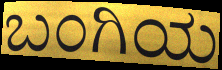
ಬಂಗಿಯ